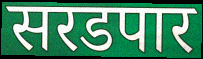
सरडपार